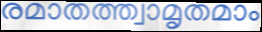
രമാതത്ത്വാമൃതമാം